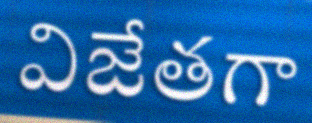
విజేతగా